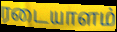
ரடையாளம்